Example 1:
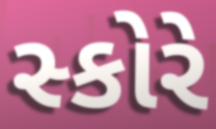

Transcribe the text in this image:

સ્કોરે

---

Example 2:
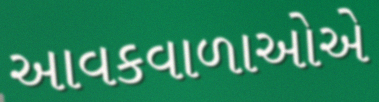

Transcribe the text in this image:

આવકવાળાઓએ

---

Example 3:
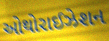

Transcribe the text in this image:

ઓથોરાઈઝેશન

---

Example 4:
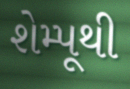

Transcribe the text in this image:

શેમ્પૂથી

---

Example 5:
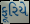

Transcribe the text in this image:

ફૂરિયે